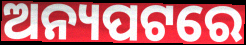
ଅନ୍ୟପଟରେ